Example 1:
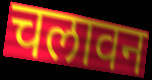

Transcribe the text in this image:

चलावन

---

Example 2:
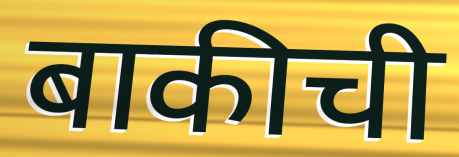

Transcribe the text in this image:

बाकीची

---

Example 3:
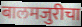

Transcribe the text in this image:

बालमजुरीचा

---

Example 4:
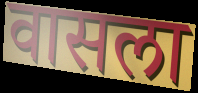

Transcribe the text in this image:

वासला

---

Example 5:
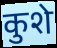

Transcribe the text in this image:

कुशे